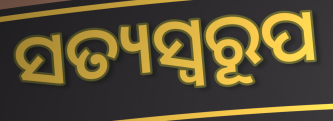
ସତ୍ୟସ୍ୱରୂପ